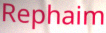
Rephaim